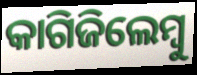
କାଗିଜିଲେମ୍ବୁ